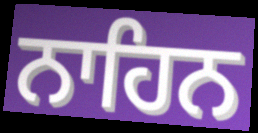
ਨਾਹਿਨ